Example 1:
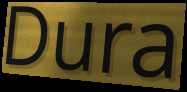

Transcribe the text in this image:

Dura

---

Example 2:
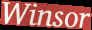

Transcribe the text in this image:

Winsor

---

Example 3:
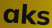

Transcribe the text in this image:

aks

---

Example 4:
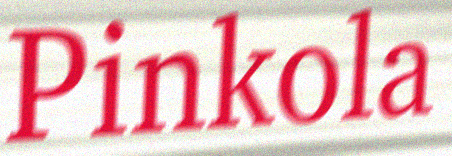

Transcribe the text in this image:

Pinkola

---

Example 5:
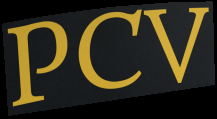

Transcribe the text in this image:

PCV